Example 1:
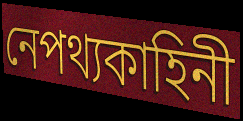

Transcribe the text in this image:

নেপথ্যকাহিনী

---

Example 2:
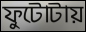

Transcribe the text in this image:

ফুটোটায়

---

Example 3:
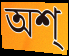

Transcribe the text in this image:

অশ্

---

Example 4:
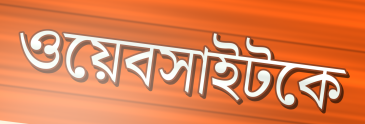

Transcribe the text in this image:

ওয়েবসাইটকে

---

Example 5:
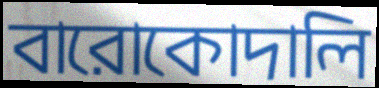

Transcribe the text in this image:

বারোকোদালি